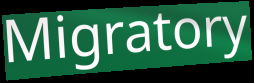
Migratory